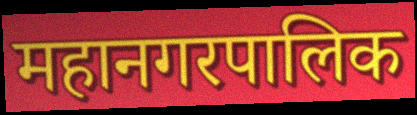
महानगरपालिक